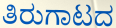
ತಿರುಗಾಟದ